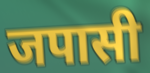
जपासी